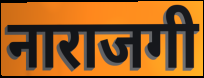
नाराजगी